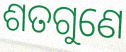
ଶତଗୁଣେ